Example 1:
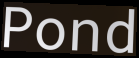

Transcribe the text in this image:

Pond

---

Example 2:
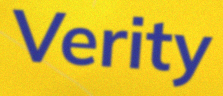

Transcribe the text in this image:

Verity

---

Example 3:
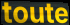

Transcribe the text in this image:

toute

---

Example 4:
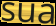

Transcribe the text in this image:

sua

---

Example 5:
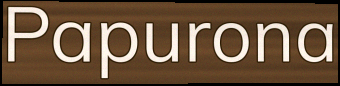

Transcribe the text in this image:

Papurona